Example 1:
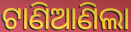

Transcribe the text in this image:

ଟାଣିଆଣିଲା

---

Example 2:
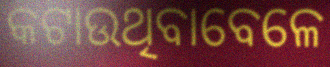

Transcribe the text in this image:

କଟାଉଥିବାବେଳେ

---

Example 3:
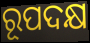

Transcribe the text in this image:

ରୂପଦକ୍ଷ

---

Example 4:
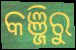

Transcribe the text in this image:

କଞ୍ଜିରୁ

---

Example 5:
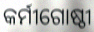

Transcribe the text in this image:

କର୍ମୀଗୋଷ୍ଠୀ